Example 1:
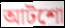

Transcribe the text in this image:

আটশো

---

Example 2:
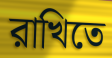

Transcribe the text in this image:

রাখিতে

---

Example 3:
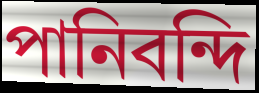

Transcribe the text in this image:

পানিবন্দি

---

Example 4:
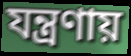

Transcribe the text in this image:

যন্ত্রণায়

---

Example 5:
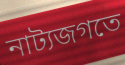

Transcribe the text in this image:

নাট্যজগতে